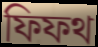
ফিফথ